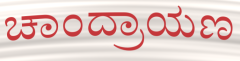
ಚಾಂದ್ರಾಯಣ